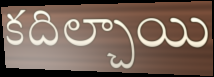
కదిల్చాయి